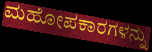
ಮಹೋಪಕಾರಗಳನ್ನು